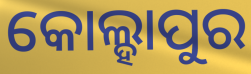
କୋଲ୍ହାପୁର